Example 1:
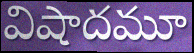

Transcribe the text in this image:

విషాదమూ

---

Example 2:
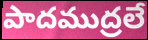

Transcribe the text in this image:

పాదముద్రలే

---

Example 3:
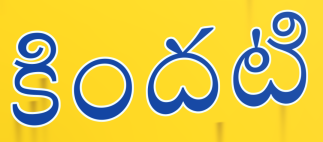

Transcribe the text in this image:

కిందటి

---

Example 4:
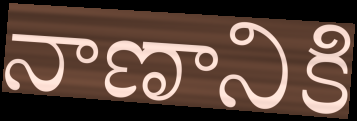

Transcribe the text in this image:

నాణానికి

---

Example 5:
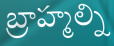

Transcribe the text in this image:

బ్రాహ్మల్ని